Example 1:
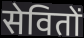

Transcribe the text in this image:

सेवितों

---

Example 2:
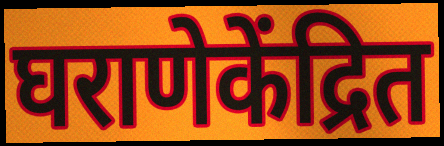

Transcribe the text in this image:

घराणेकेंद्रित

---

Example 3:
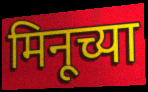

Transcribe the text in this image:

मिनूच्या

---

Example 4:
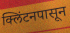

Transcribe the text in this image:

क्लिंटनपासून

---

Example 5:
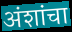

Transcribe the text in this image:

अंशांचा